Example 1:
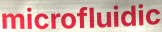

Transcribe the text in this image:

microfluidic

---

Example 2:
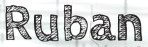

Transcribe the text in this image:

Ruban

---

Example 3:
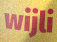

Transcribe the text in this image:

wijli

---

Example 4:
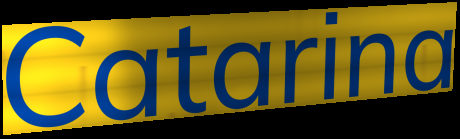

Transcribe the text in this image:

Catarina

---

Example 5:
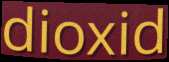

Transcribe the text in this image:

dioxid